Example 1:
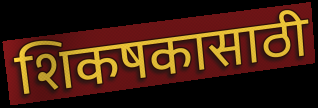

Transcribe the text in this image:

शिकषकासाठी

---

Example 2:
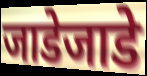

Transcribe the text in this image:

जाडेजाडे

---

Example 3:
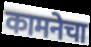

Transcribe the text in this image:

कामनेचा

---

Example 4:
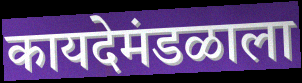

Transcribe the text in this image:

कायदेमंडळाला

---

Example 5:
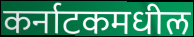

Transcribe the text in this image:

कर्नाटकमधील